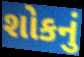
શોકનું